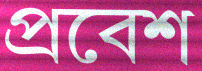
প্রবেশ